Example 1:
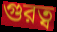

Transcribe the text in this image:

গুরত্ব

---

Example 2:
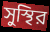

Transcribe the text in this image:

সুস্থির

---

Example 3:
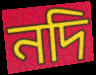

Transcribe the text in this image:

নদি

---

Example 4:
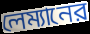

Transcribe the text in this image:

লেম্যানের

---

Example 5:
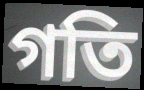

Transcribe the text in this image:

গতি